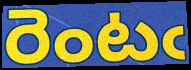
రెంటఁ